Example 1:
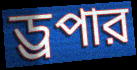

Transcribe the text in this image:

ড্রপার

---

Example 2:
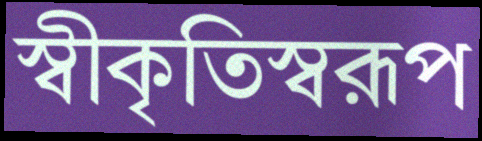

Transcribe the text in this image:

স্বীকৃতিস্বরূপ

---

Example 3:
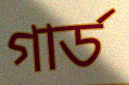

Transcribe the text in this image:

গার্ড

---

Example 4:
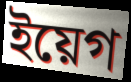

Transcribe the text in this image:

ইয়েগ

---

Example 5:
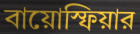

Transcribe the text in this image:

বায়োস্ফিয়ার